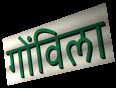
गोंविला